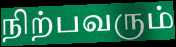
நிற்பவரும்